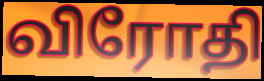
விரோதி